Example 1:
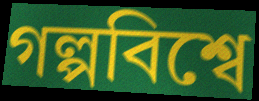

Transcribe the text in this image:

গল্পবিশ্বে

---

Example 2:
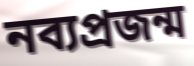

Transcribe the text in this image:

নব্যপ্রজন্ম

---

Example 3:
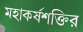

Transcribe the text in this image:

মহাকর্ষশক্তির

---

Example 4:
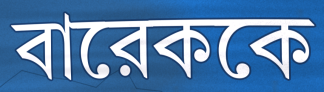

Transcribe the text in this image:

বারেককে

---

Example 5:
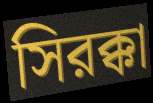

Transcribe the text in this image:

সিরক্কা